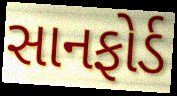
સાનફોર્ડ